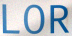
LOR